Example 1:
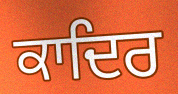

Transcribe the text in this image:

ਕਾਦਿਰ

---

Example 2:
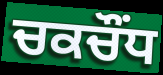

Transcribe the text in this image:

ਚਕਚੌਂਧ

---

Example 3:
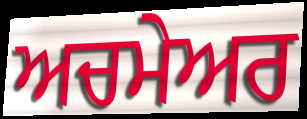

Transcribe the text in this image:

ਅਚਮੇਅਰ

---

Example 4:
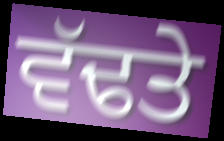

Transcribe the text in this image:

ਵੱਢਤੇ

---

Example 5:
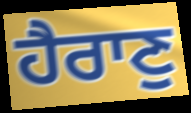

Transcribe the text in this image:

ਹੈਰਾਣੁ